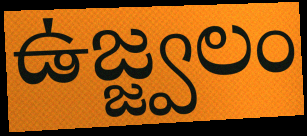
ఉజ్జ్వలం